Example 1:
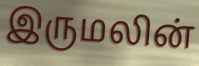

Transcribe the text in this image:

இருமலின்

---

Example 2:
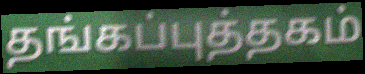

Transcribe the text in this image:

தங்கப்புத்தகம்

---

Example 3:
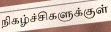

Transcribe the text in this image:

நிகழ்ச்சிகளுக்குள்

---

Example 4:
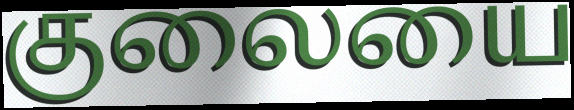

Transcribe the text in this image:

குலையை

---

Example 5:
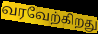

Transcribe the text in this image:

வரவேற்கிறது